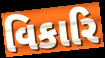
વિકારિ